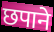
छपाने